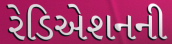
રેડિએશનની